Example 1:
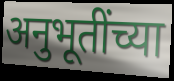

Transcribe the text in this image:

अनुभूतींच्या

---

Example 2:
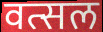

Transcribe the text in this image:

वत्सल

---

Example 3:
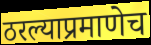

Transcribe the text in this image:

ठरल्याप्रमाणेच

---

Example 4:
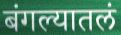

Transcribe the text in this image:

बंगल्यातलं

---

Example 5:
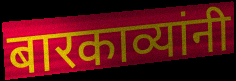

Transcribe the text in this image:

बारकाव्यांनी